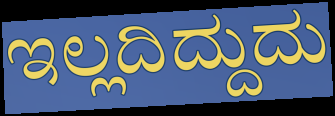
ಇಲ್ಲದಿದ್ದುದು